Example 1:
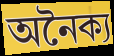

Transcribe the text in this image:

অনৈক্য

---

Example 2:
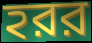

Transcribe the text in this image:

হরর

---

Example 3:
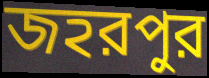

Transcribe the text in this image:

জহরপুর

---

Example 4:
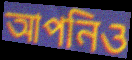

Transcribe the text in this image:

আপনিও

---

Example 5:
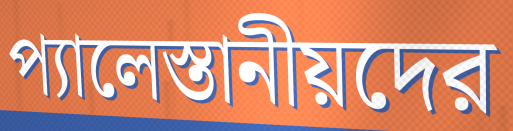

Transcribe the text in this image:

প্যালেস্তানীয়দের